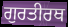
ਗੁਰਤੀਰਥ